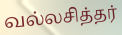
வல்லசித்தர்